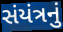
સંયંત્રનું